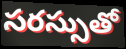
సరస్సుతో